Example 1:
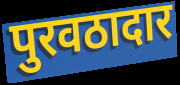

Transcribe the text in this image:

पुरवठादार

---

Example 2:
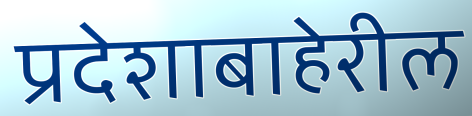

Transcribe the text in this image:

प्रदेशाबाहेरील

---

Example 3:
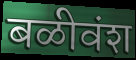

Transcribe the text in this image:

बळीवंश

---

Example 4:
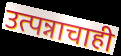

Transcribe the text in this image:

उत्पन्नाचाही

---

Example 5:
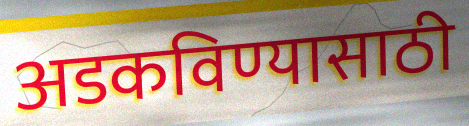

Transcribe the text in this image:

अडकविण्यासाठी